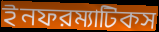
ইনফরম্যাটিকস